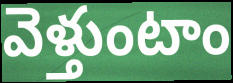
వెళ్తుంటాం